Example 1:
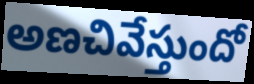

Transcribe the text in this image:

అణచివేస్తుందో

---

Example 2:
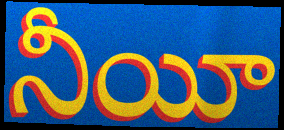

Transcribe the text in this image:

నీయీ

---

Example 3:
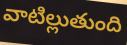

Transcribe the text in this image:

వాటిల్లుతుంది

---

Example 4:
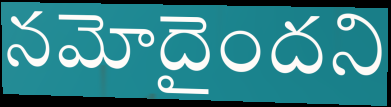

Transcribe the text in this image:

నమోదైందని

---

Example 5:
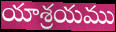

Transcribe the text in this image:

యాశ్రయము